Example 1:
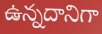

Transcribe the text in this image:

ఉన్నదానిగా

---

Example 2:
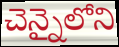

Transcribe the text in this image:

చెన్నైలోని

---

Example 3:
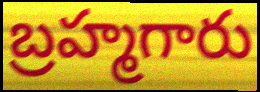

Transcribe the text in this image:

బ్రహ్మగారు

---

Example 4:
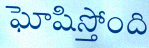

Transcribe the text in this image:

ఘోషిస్తోంది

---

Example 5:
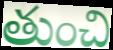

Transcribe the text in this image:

తుంచి